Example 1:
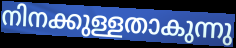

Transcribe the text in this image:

നിനക്കുള്ളതാകുന്നു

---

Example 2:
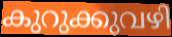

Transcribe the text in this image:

കുറുക്കുവഴി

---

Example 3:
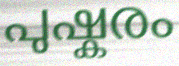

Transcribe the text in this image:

പുഷ്കരം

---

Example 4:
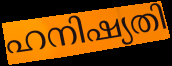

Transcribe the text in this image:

ഹനിഷ്യതി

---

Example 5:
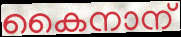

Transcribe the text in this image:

കൈനാന്